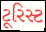
ટૂરિસ્ટ